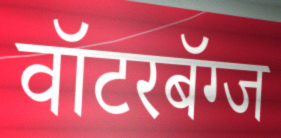
वॉटरबॅग्ज